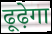
ढूढ़ेगा